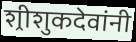
श्रीशुकदेवांनी